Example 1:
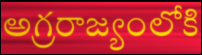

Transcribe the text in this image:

అగ్రరాజ్యంలోకి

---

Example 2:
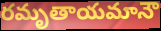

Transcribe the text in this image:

రమృతాయమానౌ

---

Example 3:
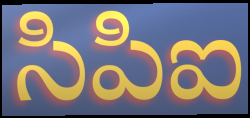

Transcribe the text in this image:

సిపిఐ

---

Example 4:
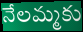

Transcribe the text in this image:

నేలమ్మకు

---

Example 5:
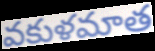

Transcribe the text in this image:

వకుళమాత